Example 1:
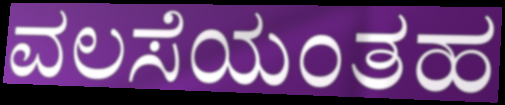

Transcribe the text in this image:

ವಲಸೆಯಂತಹ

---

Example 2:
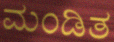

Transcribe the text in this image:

ಮಂಡಿತ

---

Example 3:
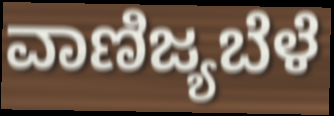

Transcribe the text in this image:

ವಾಣಿಜ್ಯಬೆಳೆ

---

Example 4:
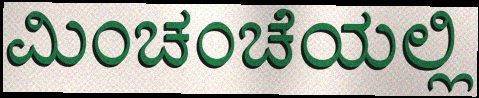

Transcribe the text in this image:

ಮಿಂಚಂಚೆಯಲ್ಲಿ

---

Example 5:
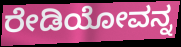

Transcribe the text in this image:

ರೇಡಿಯೋವನ್ನ